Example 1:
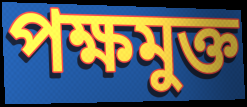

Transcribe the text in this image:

পক্ষমুক্ত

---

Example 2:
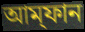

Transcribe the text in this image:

আম্‌ফান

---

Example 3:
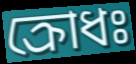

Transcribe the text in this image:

ক্রোধঃ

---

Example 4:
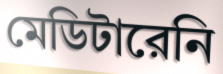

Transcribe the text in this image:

মেডিটারেনি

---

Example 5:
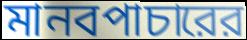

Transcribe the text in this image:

মানবপাচারের